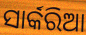
ସାର୍କରିଆ